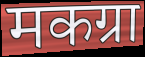
मकग्रा